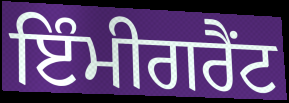
ਇੰਮੀਗਰੈਂਟ